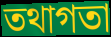
তথাগতা